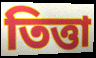
তিত্তা